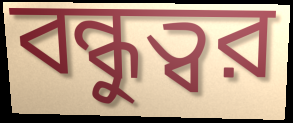
বন্ধুত্বর